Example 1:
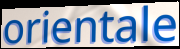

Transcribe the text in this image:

orientale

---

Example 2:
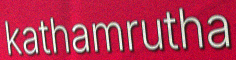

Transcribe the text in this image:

kathamrutha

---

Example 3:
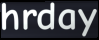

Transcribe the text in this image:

hrday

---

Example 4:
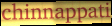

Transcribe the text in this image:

chinnappati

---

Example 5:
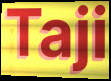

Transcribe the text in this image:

Taji